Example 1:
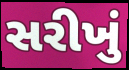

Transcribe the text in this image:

સરીખું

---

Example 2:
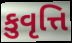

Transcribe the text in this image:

કુવૃત્તિ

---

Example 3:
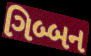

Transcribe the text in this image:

ગિબ્બન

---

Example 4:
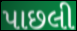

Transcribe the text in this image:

પાછલી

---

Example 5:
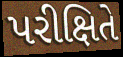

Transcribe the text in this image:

પરીક્ષિતે